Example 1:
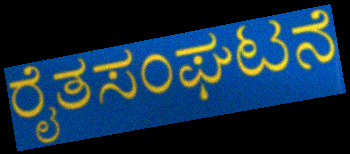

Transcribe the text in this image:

ರೈತಸಂಘಟನೆ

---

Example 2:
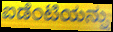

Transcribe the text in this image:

ಐಡೆಂಟಿಯನ್ನು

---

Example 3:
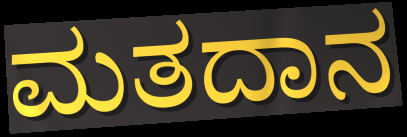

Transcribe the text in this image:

ಮತದಾನ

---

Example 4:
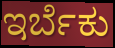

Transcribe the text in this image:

ಇರ್ಬೆಕು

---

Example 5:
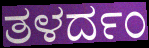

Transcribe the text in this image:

ತಳರ್ದಂ